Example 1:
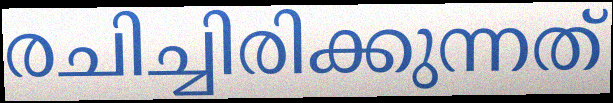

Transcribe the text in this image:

രചിച്ചിരിക്കുന്നത്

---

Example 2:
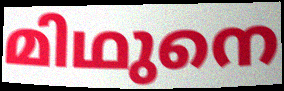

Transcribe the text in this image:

മിഥുനെ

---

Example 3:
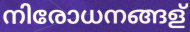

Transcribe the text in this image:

നിരോധനങ്ങള്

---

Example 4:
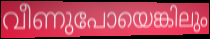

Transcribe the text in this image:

വീണുപോയെങ്കിലും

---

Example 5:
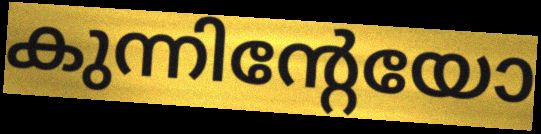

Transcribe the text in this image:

കുന്നിന്റേയോ